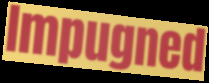
Impugned